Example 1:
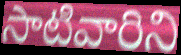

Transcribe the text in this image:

సాటివారిని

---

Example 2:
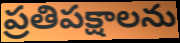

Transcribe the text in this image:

ప్రతిపక్షాలను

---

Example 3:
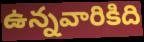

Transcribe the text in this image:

ఉన్నవారికిది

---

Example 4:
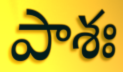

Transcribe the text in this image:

పాశః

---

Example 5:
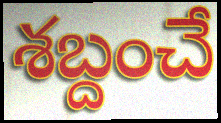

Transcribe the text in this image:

శబ్దంచే